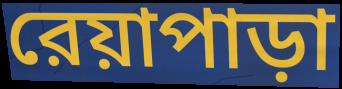
রেয়াপাড়া